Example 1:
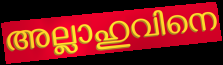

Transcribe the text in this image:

അല്ലാഹുവിനെ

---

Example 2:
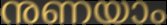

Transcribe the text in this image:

നുണയാം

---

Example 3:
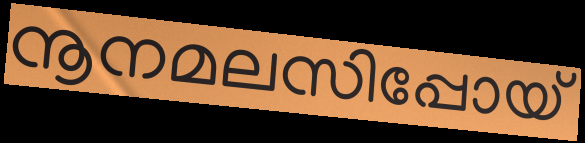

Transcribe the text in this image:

നൂനമലസിപ്പോയ്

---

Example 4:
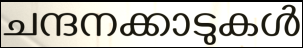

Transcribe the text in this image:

ചന്ദനക്കാടുകൾ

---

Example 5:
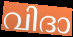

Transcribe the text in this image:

വിദാ